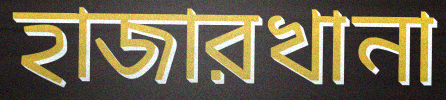
হাজারখানা